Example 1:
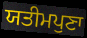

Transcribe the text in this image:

ਯਤੀਮਪੁਣਾ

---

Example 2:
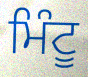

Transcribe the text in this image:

ਮਿੰਟੂ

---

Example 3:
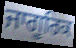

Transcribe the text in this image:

ਜਾਗੂਰਿਕ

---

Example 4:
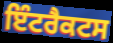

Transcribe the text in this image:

ਇੰਟਰੈਕਟਸ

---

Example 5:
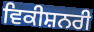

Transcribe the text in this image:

ਵਿਕੀਸ਼ਨਰੀ